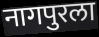
नागपुरला